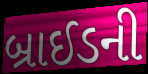
બ્રાઈડની